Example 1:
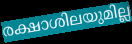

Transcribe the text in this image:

രക്ഷാശിലയുമില്ല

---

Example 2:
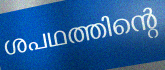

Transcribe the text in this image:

ശപഥത്തിന്റെ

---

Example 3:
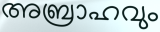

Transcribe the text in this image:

അബ്രാഹവും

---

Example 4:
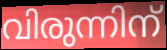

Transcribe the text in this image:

വിരുന്നിന്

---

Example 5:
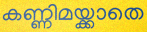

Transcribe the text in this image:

കണ്ണിമയ്ക്കാതെ